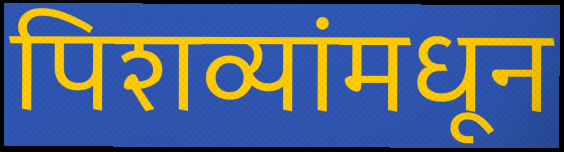
पिशव्यांमधून